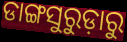
ଡାଙ୍ଗସୁରୁଡ଼ାରୁ